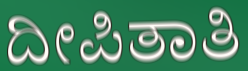
ದೀಪಿತಾತಿ